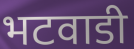
भटवाडी